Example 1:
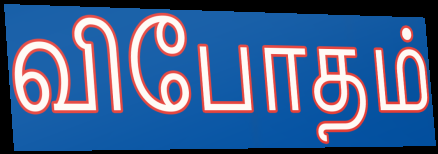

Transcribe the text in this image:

விபோதம்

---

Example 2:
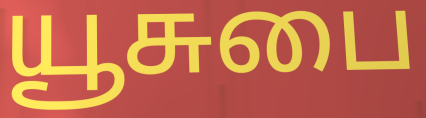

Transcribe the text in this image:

யூசுபை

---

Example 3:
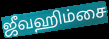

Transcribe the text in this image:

ஜீவஹிம்சை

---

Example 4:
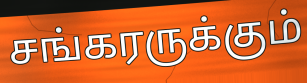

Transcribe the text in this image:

சங்கரருக்கும்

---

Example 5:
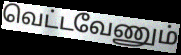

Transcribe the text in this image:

வெட்டவேணும்